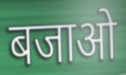
बजाओ